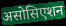
असोसिएशन